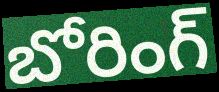
బోరింగ్